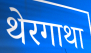
थेरगाथा